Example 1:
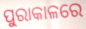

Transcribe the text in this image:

ପୁରାକାଳରେ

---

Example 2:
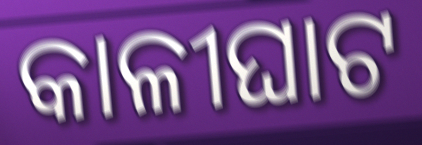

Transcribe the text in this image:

କାଳୀଘାଟ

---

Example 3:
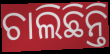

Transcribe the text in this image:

ଚାଲିଛିନ୍ତି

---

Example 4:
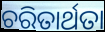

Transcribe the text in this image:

ଚରିତାର୍ଥତା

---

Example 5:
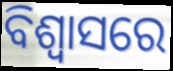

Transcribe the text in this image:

ବିଶ୍ୱାସରେ